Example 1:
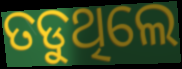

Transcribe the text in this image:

ତଡୁଥିଲେ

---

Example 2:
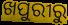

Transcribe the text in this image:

ଖପୁରୀରୁ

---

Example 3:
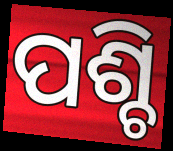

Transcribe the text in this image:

ପଶ୍ଚି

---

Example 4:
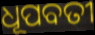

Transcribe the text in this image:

ଧୂପବତୀ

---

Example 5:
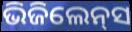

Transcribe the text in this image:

ଭିଜିଲେନ୍‌ସ